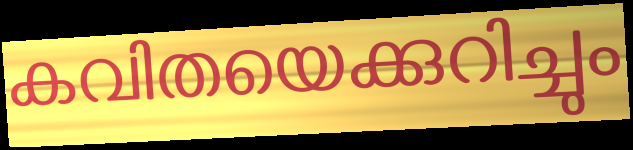
കവിതയെക്കുറിച്ചും